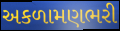
અકળામણભરી